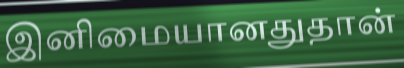
இனிமையானதுதான்